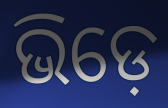
ଭିଡ଼େ